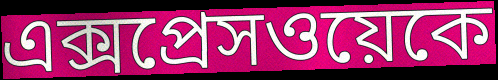
এক্সপ্রেসওয়েকে